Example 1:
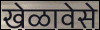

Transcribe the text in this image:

खेळावेसे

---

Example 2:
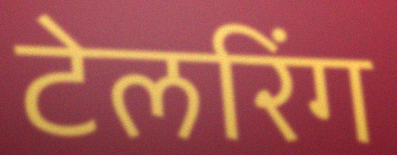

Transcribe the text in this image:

टेलरिंग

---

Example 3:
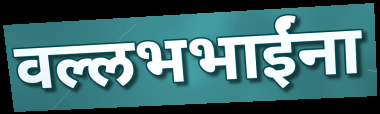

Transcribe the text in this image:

वल्लभभाईंना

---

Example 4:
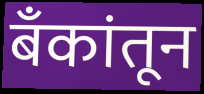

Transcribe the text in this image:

बँकांतून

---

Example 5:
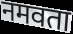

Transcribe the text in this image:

नमवता